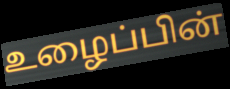
உழைப்பின்